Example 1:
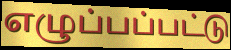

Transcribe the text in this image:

எழுப்பப்பட்டு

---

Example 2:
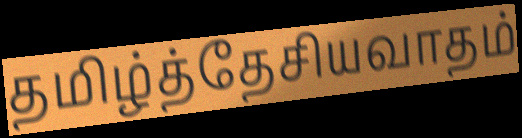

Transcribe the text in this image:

தமிழ்த்தேசியவாதம்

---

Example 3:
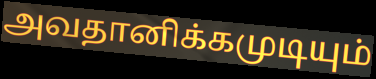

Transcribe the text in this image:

அவதானிக்கமுடியும்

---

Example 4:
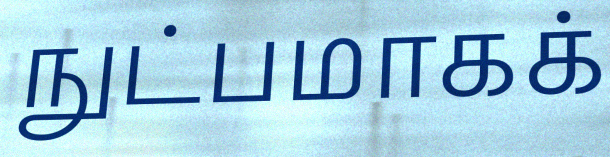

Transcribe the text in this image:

நுட்பமாகக்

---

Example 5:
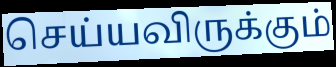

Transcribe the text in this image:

செய்யவிருக்கும்